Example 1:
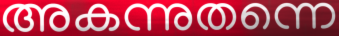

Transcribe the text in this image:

അകന്നുതന്നെ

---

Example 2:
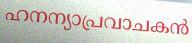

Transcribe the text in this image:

ഹനന്യാപ്രവാചകൻ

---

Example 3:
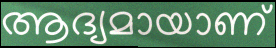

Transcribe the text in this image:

ആദ്യമായാണ്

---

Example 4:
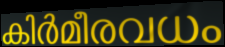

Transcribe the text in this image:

കിർമീരവധം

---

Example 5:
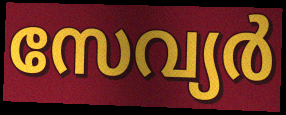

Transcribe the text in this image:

സേവ്യർ